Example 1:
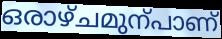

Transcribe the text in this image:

ഒരാഴ്ചമുന്പാണ്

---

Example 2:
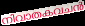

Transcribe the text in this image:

നിവാതകവചൻ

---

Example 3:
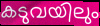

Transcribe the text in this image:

കടുവയിലും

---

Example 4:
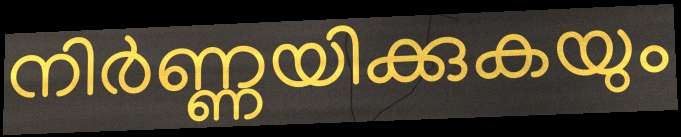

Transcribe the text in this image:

നിർണ്ണയിക്കുകയും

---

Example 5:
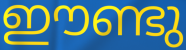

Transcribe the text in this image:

ഈണ്ടു